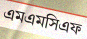
এমএমসিএফ